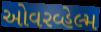
ઓવરવ્હેલ્મ